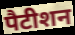
पैटीशन